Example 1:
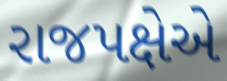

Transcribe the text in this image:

રાજપક્ષેએ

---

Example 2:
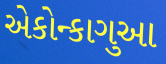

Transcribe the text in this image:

એકોન્કાગુઆ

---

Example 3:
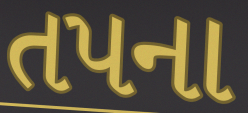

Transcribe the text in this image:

તપના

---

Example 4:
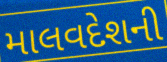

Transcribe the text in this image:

માલવદેશની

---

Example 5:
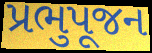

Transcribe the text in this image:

પ્રભુપૂજન